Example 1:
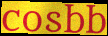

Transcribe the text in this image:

cosbb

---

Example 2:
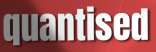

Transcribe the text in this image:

quantised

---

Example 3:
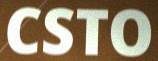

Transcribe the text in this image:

CSTO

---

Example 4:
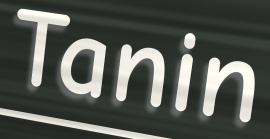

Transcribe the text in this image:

Tanin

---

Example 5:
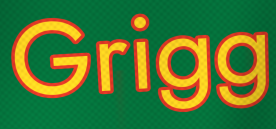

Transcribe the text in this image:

Grigg